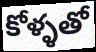
కోళ్ళతో